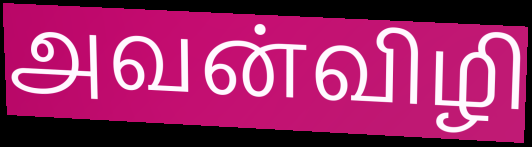
அவன்விழி